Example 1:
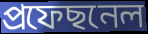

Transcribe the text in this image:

প্ৰফেছনেল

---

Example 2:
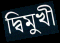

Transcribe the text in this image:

দ্বিমুখী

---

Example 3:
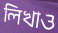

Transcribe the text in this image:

লিখাও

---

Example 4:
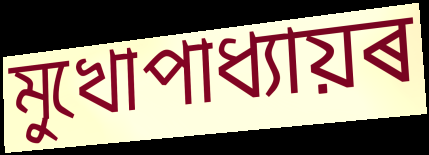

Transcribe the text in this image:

মুখোপাধ্যায়ৰ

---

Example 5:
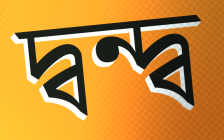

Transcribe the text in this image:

দ্বন্দ্ব